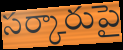
సర్కారుపై